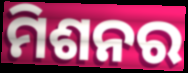
ମିଶନର